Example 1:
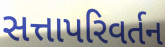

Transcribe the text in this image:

સત્તાપરિવર્તન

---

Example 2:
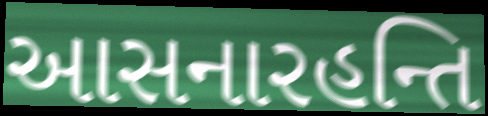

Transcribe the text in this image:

આસનારહન્તિ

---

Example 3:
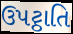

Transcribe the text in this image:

ઉપટ્ઠાતિ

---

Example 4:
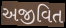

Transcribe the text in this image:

અજીવિત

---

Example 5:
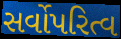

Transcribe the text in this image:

સર્વોપરિત્વ